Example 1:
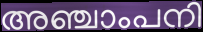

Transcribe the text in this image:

അഞ്ചാംപനി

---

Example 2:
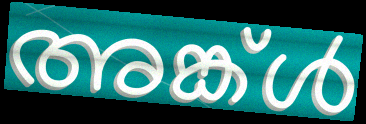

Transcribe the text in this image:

അങ്ക്ൾ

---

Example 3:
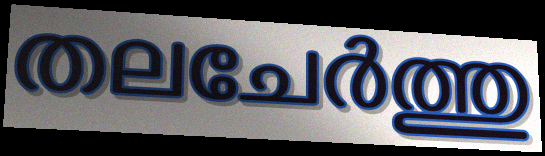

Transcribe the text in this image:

തലചേർത്തു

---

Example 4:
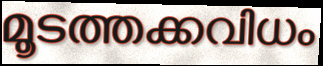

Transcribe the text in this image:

മൂടത്തക്കവിധം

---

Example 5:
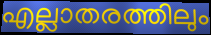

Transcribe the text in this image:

എല്ലാതരത്തിലും